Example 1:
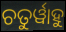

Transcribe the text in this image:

ଚତୁର୍ୱାହୁ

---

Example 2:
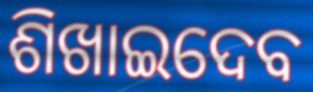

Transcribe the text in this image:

ଶିଖାଇଦେବ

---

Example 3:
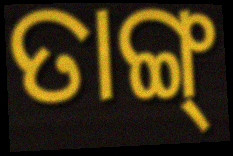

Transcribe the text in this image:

ତାଙ୍ଗ୍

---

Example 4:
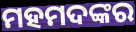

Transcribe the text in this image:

ମହମଦଙ୍କର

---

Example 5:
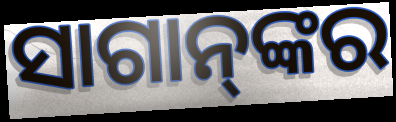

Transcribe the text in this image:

ସାଗାନ୍‌ଙ୍କର